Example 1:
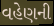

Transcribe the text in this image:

વહેણની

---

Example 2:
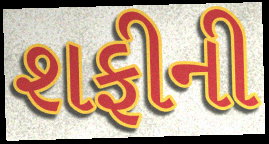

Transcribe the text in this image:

શફીની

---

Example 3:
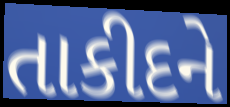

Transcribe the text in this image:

તાકીદને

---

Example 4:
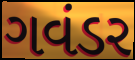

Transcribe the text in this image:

ગવંડર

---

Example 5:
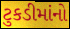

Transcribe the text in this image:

ટુકડીમાંનો